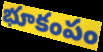
భూకంపం